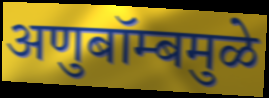
अणुबॉम्बमुळे